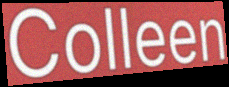
Colleen